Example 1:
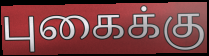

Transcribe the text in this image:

புகைக்கு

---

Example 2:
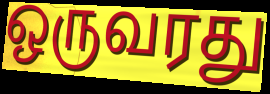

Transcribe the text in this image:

ஒருவரது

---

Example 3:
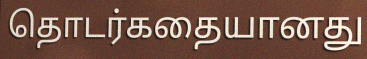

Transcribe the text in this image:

தொடர்கதையானது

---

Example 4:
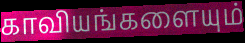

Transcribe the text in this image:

காவியங்களையும்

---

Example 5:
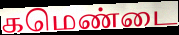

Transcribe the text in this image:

கமெண்டை